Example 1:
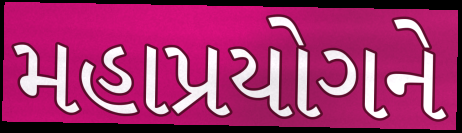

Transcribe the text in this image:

મહાપ્રયોગને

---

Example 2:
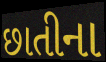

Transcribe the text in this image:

છાતીના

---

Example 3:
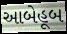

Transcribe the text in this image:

આબેહૂબ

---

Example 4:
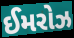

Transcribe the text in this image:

ઈમરોઝ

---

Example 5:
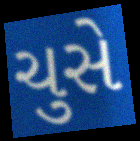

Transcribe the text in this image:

ચુસે